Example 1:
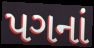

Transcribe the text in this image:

પગનાં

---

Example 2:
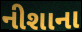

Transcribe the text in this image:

નીશાના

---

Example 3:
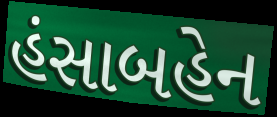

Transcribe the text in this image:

હંસાબહેન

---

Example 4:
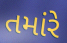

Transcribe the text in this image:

તમાંરે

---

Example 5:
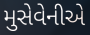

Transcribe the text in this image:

મુસેવેનીએ